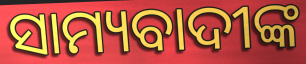
ସାମ୍ୟବାଦୀଙ୍କ